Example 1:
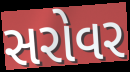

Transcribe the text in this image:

સરોવર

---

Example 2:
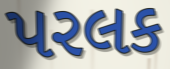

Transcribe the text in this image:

પરલક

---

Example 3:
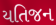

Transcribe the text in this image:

યતિજન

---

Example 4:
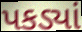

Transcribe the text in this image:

પકડ્યાં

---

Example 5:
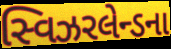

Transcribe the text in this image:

સ્વિઝરલેન્ડના